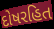
દોષરહિત